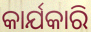
କାର୍ଯକାରି